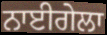
ਨਾਈਗੇਲਾ